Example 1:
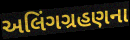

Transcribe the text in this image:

અલિંગગ્રહણના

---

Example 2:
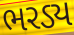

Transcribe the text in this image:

ભરડ્ય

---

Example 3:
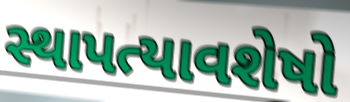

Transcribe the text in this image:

સ્થાપત્યાવશેષો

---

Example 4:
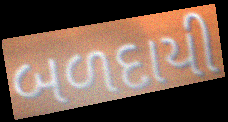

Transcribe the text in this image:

બળદાયી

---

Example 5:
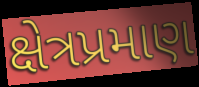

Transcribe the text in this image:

ક્ષેત્રપ્રમાણ